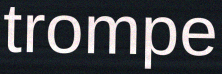
trompe